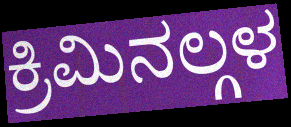
ಕ್ರಿಮಿನಲ್ಗಳ